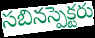
సబినస్పెక్టరు